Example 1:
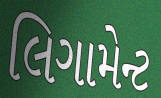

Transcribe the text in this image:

લિગામેન્ટ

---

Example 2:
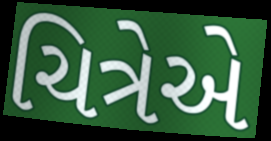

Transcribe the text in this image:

ચિત્રેએ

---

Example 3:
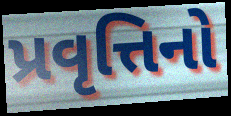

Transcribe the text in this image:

પ્રવૃત્તિનો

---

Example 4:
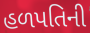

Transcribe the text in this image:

હળપતિની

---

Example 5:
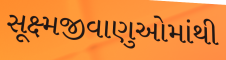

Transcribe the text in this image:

સૂક્ષ્મજીવાણુઓમાંથી